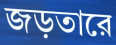
জড়তারে